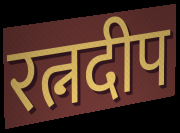
रत्नदीप